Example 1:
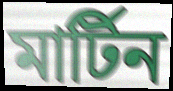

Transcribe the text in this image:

মাৰ্টিন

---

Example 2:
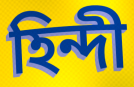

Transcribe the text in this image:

হিন্দী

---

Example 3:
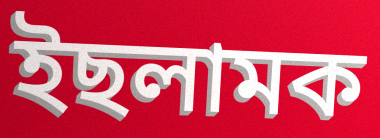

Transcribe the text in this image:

ইছলামক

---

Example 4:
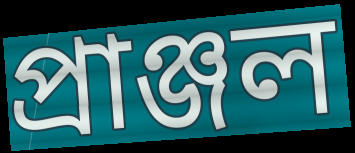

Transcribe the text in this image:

প্ৰাঞ্জল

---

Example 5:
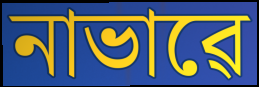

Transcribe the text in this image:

নাভাৱে